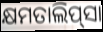
କ୍ଷମତାଲିପ୍‍ସା